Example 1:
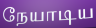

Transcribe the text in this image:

நேயாடிய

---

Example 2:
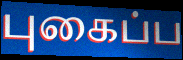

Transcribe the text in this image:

புகைப்ப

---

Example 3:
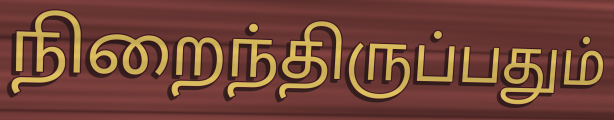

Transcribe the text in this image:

நிறைந்திருப்பதும்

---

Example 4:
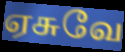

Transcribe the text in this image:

ஏசுவே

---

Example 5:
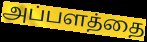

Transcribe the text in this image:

அப்பளத்தை